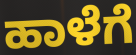
ಹಾಳೆಗೆ